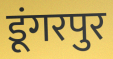
डूंगरपुर